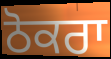
ਠੋਕਰਾ